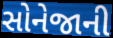
સોનેજાની